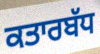
ਕਤਾਰਬੱਧ